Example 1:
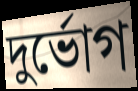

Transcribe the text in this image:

দুর্ভোগ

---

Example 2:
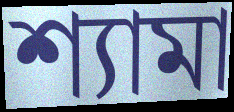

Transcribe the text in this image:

শ্যামা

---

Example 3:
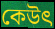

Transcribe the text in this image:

কেউৎ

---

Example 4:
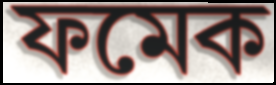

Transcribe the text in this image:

ফমেক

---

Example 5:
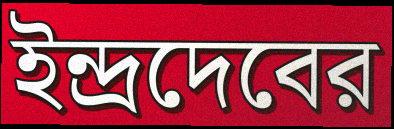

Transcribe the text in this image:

ইন্দ্রদেবের